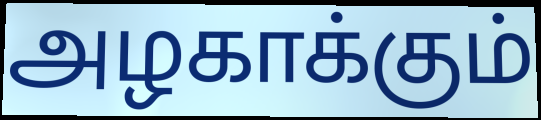
அழகாக்கும்